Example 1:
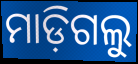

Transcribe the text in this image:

ମାଡ଼ିଗଲୁ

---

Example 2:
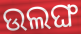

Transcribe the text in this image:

ଉଲଙ୍ଘ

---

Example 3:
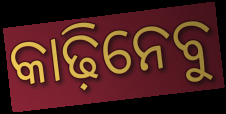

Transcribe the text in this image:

କାଢ଼ିନେବୁ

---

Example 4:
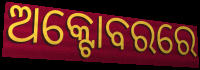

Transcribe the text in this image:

ଅକ୍ଟୋବରରେ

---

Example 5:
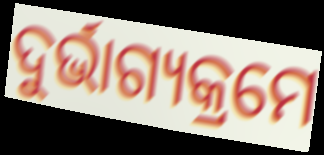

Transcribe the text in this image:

ଦୁର୍ଭାଗ୍ୟକ୍ରମେ